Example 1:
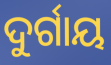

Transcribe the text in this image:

ଦୁର୍ଗାୟ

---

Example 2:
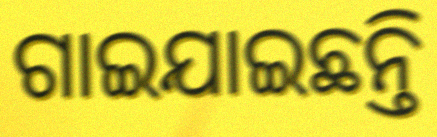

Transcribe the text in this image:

ଗାଇଯାଇଛନ୍ତି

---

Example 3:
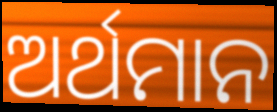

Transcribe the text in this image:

ଅର୍ଥମାନ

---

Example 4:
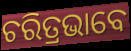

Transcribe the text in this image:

ଚରିତ୍ରଭାବେ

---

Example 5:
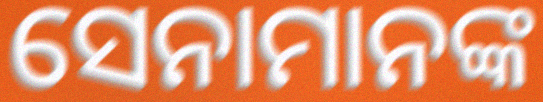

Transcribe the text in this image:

ସେନାମାନଙ୍କ